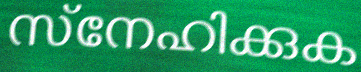
സ്‌നേഹിക്കുക